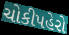
ચોકીપહેરો